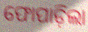
ଫୋପାଡ଼ିଲା